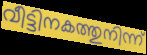
വീട്ടിനകത്തുനിന്ന്